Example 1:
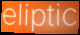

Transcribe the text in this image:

eliptic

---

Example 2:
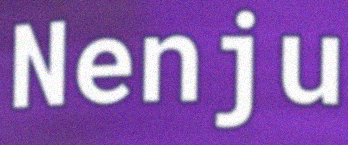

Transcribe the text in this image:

Nenju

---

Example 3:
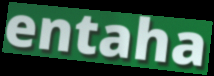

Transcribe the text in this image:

entaha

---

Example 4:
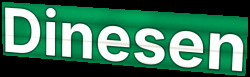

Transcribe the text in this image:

Dinesen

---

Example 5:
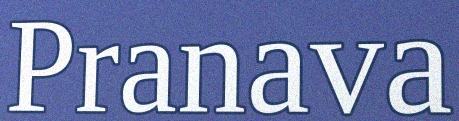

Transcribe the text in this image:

Pranava